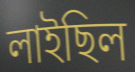
লাইছিল